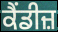
ਕੈਂਡੀਜ਼